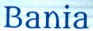
Bania